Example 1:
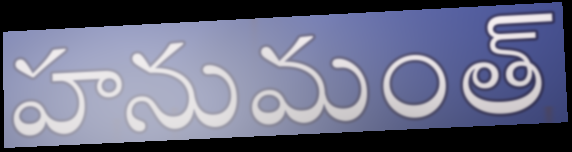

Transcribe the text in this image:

హనుమంత్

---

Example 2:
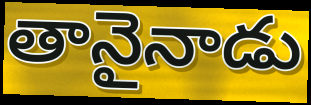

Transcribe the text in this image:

తానైనాడు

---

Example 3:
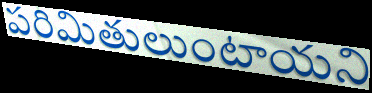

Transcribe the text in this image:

పరిమితులుంటాయని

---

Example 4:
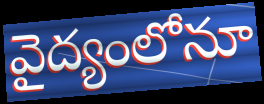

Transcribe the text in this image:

వైద్యంలోనూ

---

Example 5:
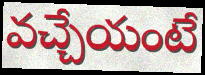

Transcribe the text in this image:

వచ్చేయంటే